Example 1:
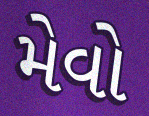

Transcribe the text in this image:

મેવો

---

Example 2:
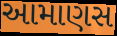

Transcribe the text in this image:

આમાણસ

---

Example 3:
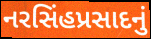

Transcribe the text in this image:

નરસિંહપ્રસાદનું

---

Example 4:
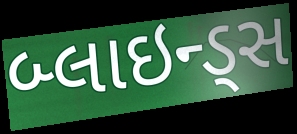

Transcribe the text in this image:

બ્લાઇન્ડ્સ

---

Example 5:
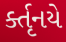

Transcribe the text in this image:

ર્ક્તૃનયે